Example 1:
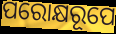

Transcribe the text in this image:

ପରୋକ୍ଷରୂପେ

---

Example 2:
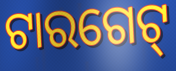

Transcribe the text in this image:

ଟାରଗେଟ୍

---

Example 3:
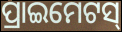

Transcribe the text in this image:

ପ୍ରାଇମେଟସ୍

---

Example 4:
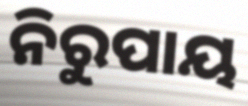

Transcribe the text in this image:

ନିରୁପାୟ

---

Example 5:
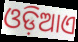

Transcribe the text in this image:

ଓଡ଼ିଆଏ